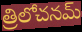
త్రిలోచనమ్